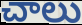
చాలు